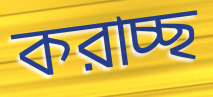
করাচ্ছ